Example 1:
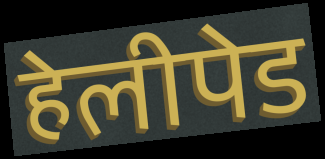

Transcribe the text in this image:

हेलीपेड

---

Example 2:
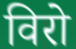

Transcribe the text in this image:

विरो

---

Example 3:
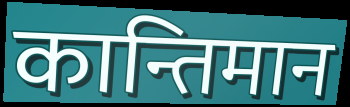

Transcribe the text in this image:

कान्तिमान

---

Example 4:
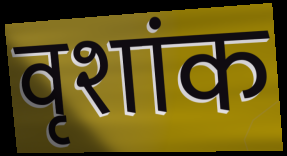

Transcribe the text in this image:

वृशांक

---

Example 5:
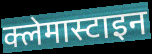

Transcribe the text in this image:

क्लेमास्टाइन